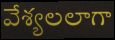
వేశ్యలలాగా